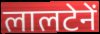
लालटेनें